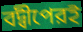
বদ্বীপেরই